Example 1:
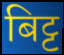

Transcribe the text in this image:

बिट्ट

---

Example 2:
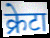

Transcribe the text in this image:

क्रेटा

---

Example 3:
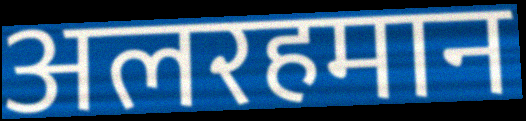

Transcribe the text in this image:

अलरहमान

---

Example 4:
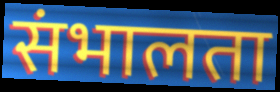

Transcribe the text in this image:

संभालता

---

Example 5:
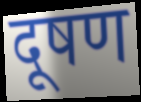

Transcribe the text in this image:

दूषण